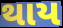
થાય